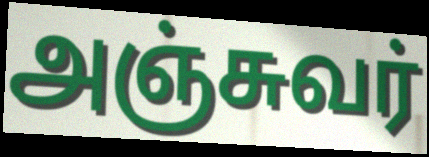
அஞ்சுவர்